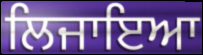
ਲਿਜਾਇਆ